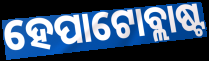
ହେପାଟୋବ୍ଲାଷ୍ଟ